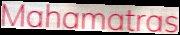
Mahamatras